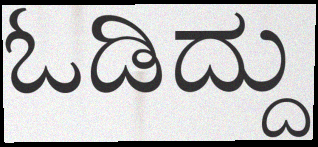
ಓಡಿದ್ದು